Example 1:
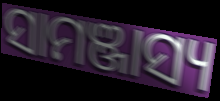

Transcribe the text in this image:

ସାମଞ୍ଜାସ୍ୟ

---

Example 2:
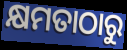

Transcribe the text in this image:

କ୍ଷମତାଠାରୁ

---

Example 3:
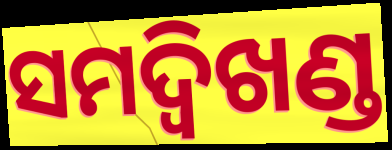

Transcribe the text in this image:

ସମଦ୍ବିଖଣ୍ଡ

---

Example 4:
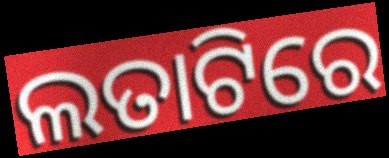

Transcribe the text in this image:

ଲତାଟିରେ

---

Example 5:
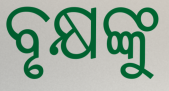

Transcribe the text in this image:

ବୃକ୍ଷଙ୍କୁ